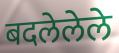
बदलेलेले